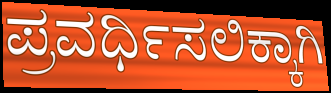
ಪ್ರವರ್ಧಿಸಲಿಕ್ಕಾಗಿ